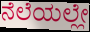
ನೆಲೆಯಲ್ಲೇ